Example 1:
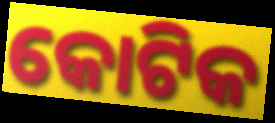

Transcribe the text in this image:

କୋଟିକ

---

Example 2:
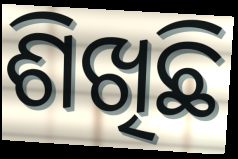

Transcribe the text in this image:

ଶିଖିଛି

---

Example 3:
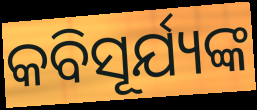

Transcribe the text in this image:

କବିସୂର୍ଯ୍ୟଙ୍କ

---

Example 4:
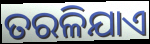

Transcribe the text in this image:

ତରଳିଯାଏ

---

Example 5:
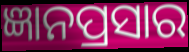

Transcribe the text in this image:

ଜ୍ଞାନପ୍ରସାର